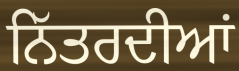
ਨਿੱਤਰਦੀਆਂ